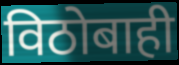
विठोबाही